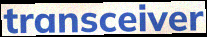
transceiver